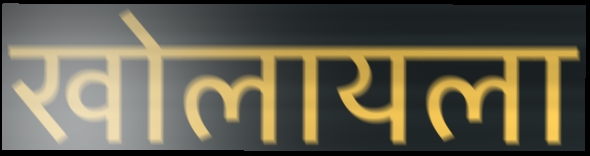
खोलायला